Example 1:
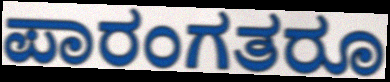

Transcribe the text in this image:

ಪಾರಂಗತರೂ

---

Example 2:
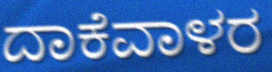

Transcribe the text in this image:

ದಾಕೆವಾಳರ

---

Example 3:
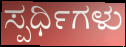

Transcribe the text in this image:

ಸ್ಪರ್ಧಿಗಳು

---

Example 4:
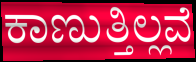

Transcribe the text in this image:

ಕಾಣುತ್ತಿಲ್ಲವೆ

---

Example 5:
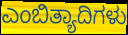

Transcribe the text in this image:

ಎಂಬಿತ್ಯಾದಿಗಳು